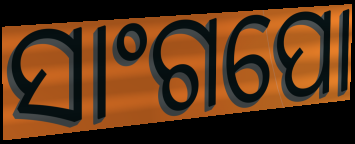
ସାଂଗପୋ